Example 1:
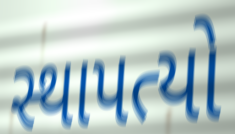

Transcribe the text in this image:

સ્થાપત્યો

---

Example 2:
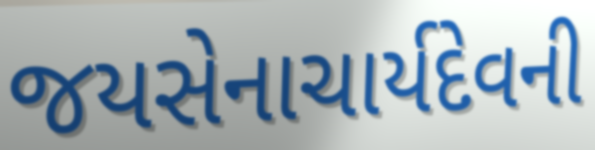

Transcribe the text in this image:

જયસેનાચાર્યદેવની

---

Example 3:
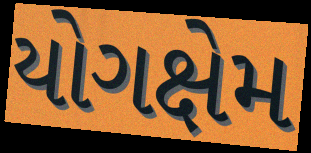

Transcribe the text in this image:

યોગક્ષેમ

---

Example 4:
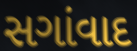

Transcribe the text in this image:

સગાંવાદ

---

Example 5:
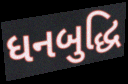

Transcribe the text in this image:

ધનબુદ્ધિ